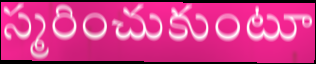
స్మరించుకుంటూ